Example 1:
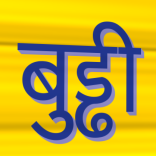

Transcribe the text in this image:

बुड्ढी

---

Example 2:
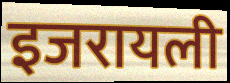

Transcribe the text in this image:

इजरायली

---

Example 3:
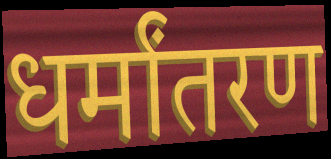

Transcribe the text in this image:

धर्मांतरण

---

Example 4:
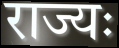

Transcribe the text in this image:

राज्यः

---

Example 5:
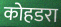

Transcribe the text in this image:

कोहडरा